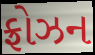
ફ્રોઝન